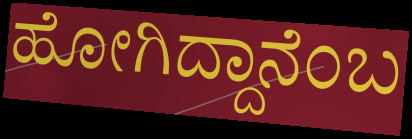
ಹೋಗಿದ್ದಾನೆಂಬ